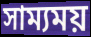
সাম্যময়